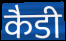
कैडी